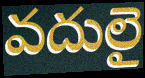
వదులై